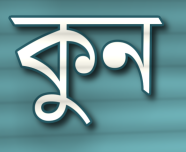
কুন